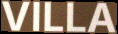
VILLA